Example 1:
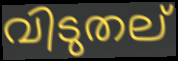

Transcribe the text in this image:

വിടുതല്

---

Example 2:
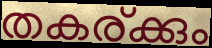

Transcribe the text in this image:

തകര്ക്കും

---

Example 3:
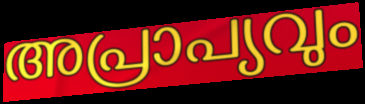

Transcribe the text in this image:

അപ്രാപ്യവും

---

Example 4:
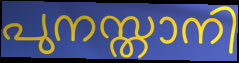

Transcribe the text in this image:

പുനസ്താനി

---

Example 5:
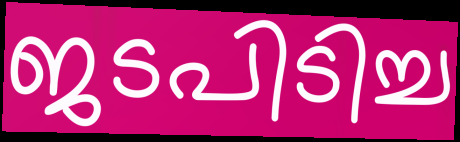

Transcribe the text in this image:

ജടപിടിച്ച